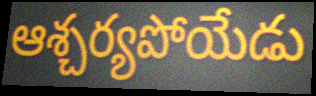
ఆశ్చర్యపోయేడు